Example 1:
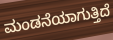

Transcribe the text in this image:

ಮಂಡನೆಯಾಗುತ್ತಿದೆ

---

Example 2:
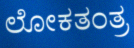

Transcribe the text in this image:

ಲೋಕತಂತ್ರ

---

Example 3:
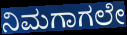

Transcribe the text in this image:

ನಿಮಗಾಗಲೇ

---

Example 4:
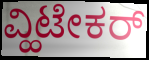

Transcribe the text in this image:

ವ್ಹಿಟೇಕರ್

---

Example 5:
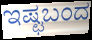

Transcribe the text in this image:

ಇಷ್ಟಬಂದ